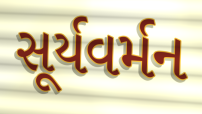
સૂર્યવર્મન